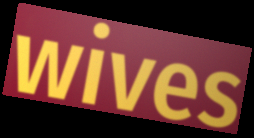
wives